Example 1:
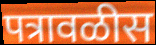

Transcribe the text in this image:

पत्रावळीस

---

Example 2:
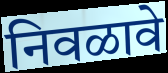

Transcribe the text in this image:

निवळावे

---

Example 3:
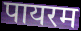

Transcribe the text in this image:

पायरम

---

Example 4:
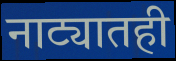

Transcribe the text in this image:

नाट्यातही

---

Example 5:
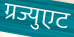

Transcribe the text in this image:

ग्रज्युएट